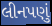
લીનપણું